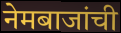
नेमबाजांची